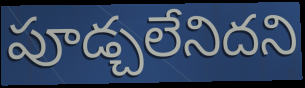
పూడ్చలేనిదని